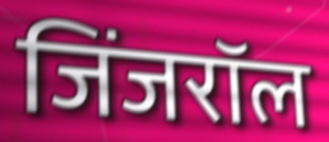
जिंजरॉल